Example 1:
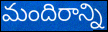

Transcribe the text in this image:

మందిరాన్ని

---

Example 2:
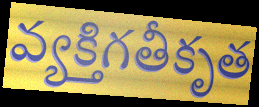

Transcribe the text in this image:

వ్యక్తిగతీకృత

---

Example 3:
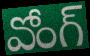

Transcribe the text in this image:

వోంగ్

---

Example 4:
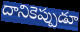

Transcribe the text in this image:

దానికెప్పుడూ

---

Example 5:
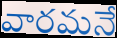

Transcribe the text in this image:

వారమనే